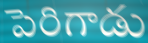
పెరిగాడు